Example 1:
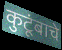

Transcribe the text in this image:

कुटूंबाचे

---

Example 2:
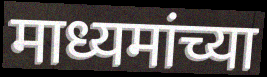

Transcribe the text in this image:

माध्यमांच्या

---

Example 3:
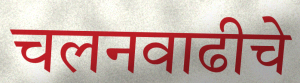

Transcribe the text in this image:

चलनवाढीचे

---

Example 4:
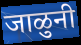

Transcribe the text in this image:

जाळुनी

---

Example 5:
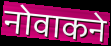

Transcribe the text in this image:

नोवाकने